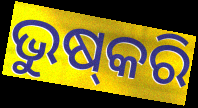
ଭୁଷ୍‍କରି